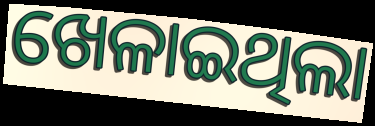
ଖେଳାଇଥିଲା